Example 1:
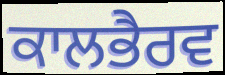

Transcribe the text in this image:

ਕਾਲਭੈਰਵ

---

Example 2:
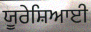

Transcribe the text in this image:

ਯੂਰੇਸ਼ਿਆਈ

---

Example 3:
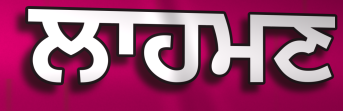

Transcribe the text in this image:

ਲਾਹਮਣ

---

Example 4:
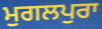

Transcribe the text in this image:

ਮੁਗਲਪੁਰਾ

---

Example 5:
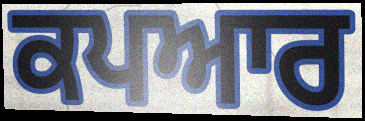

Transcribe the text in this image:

ਕਪਆਰ